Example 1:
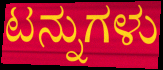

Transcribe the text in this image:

ಟನ್ನುಗಳು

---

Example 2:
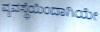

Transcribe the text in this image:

ವ್ಯವಸ್ಥೆಯಿಂದಾಗಿಯೇ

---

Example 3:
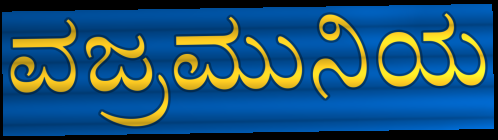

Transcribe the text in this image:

ವಜ್ರಮುನಿಯ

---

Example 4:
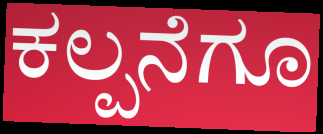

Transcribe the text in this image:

ಕಲ್ಪನೆಗೂ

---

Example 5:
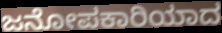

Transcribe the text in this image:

ಜನೋಪಕಾರಿಯಾದ